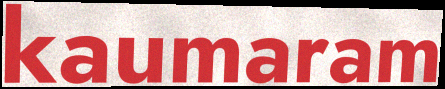
kaumaram